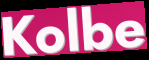
Kolbe